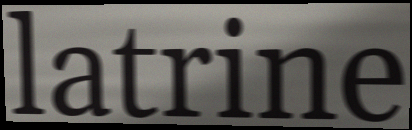
latrine